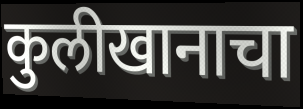
कुलीखानाचा